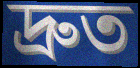
দ্ৰুত